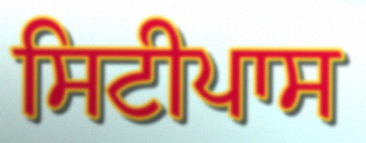
ਸਿਟੀਪਾਸ